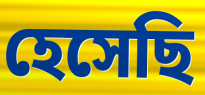
হেসেছি